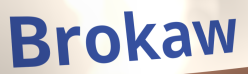
Brokaw